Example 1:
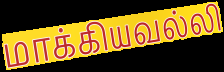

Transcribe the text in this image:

மாக்கியவல்லி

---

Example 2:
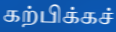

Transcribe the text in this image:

கற்பிக்கச்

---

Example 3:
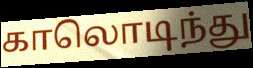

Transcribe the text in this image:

காலொடிந்து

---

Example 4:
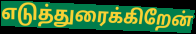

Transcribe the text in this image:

எடுத்துரைக்கிறேன்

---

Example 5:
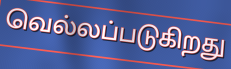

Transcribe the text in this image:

வெல்லப்படுகிறது